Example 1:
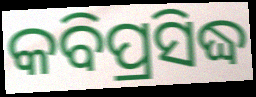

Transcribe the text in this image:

କବିପ୍ରସିଦ୍ଧ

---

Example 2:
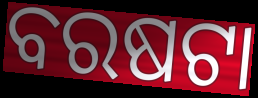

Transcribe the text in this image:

ବରଷଟା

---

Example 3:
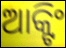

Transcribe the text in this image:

ଆକ୍ଟିଂ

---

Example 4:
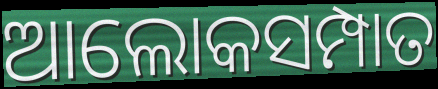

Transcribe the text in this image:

ଆଲୋକସମ୍ପାତ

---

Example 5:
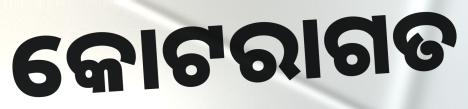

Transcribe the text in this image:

କୋଟରାଗତ